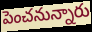
పెంచనున్నారు